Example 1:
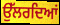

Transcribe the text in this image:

ਉੱਲਰਦਿਆਂ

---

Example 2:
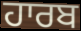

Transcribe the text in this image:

ਹਾਰਬ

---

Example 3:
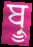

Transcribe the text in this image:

ਬ੍ਰੂ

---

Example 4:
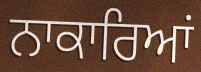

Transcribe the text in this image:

ਨਾਕਾਰਿਆਂ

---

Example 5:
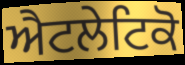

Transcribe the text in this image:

ਐਟਲੇਟਿਕੋ